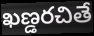
ఖణ్డరచితే